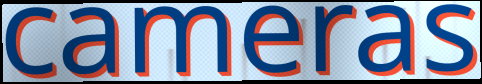
cameras